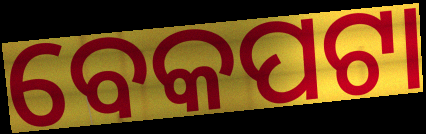
ବେକପଟା